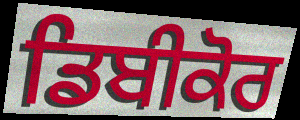
ਡਿਬੀਕੋਰ